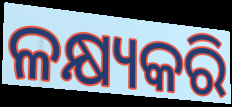
ଳକ୍ଷ୍ୟକରି